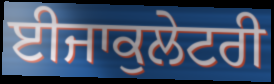
ਈਜਾਕੁਲੇਟਰੀ